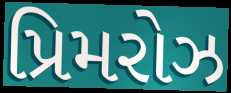
પ્રિમરોઝ